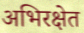
अभिरक्षेत